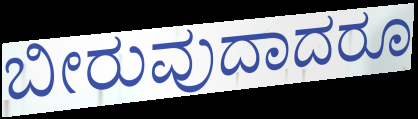
ಬೀರುವುದಾದರೂ